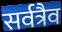
सर्वत्रैव